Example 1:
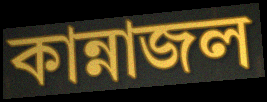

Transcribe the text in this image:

কান্নাজল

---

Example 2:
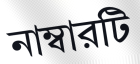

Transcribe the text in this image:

নাম্বারটি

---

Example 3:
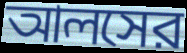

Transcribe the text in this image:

আলসের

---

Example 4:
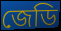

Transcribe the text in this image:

জেডি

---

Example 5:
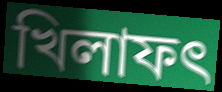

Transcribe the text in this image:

খিলাফৎ